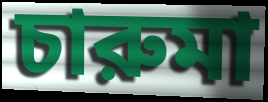
চারুমা